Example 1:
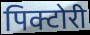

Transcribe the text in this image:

पिक्टोरी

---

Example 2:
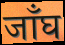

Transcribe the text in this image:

जाँघ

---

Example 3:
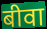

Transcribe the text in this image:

बीवा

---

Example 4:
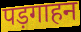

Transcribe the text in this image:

पड़गाहन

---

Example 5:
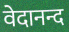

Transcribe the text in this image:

वेदानन्द